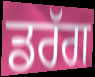
ਡਰੱਗ